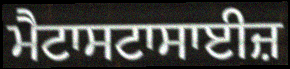
ਮੈਟਾਸਟਾਸਾਈਜ਼